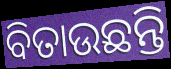
ବିତାଉଛନ୍ତି